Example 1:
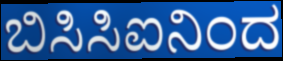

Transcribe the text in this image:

ಬಿಸಿಸಿಐನಿಂದ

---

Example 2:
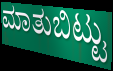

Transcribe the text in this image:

ಮಾತುಬಿಟ್ಟು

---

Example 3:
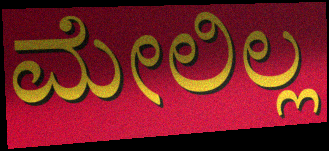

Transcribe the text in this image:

ಮೇಲಿಲ್ಲ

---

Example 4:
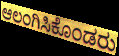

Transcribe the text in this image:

ಆಲಂಗಿಸಿಕೊಂಡರು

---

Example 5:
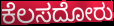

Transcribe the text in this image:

ಕೆಲಸದೋರು